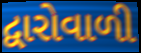
દ્વારોવાળી